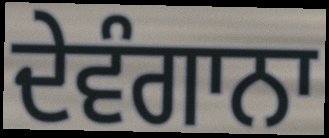
ਦੇਵੰਗਾਨਾ